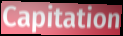
Capitation